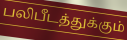
பலிபீடத்துக்கும்